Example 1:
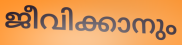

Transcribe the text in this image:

ജീവിക്കാനും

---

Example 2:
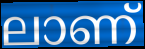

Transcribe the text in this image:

ലാണ്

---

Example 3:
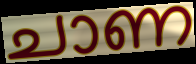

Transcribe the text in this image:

ചാണ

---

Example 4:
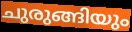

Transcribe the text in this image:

ചുരുങ്ങിയും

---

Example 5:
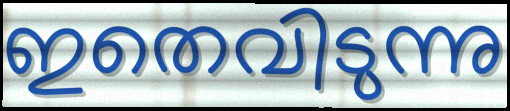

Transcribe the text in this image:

ഇതെവിടുന്നു